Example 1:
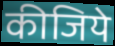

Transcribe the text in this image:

कीजिये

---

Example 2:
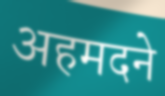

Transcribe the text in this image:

अहमदने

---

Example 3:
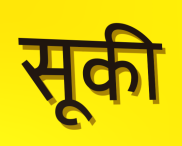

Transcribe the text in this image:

सूकी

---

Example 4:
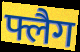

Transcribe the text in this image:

फ्लैग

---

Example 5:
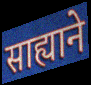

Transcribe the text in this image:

साह्याने